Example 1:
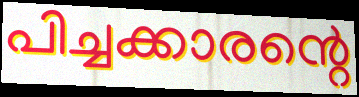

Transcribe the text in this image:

പിച്ചക്കാരന്റെ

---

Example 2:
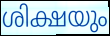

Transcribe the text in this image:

ശിക്ഷയും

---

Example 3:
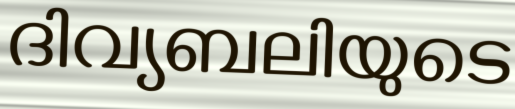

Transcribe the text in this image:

ദിവ്യബലിയുടെ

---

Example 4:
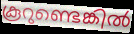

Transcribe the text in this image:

കൂറുണ്ടെങ്കിൽ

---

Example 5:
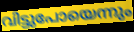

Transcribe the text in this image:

വിട്ടുപോയെന്നും